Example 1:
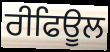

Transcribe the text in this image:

ਰੀਫਿਊਲ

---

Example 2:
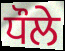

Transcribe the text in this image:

ਧੌਲੇ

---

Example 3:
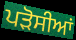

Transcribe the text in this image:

ਪੜੋਸੀਆਂ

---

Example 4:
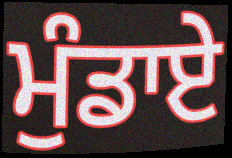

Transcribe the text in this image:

ਮੁੰਡਾਏ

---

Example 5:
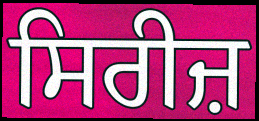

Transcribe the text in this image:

ਸਿਰੀਜ਼